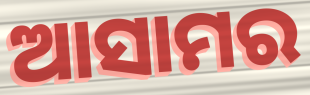
ଆସାମର